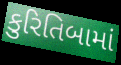
કુરિતિબામાં